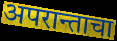
अपरान्ताचा